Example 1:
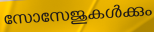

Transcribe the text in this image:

സോസേജുകൾക്കും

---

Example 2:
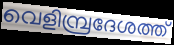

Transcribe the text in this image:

വെളിമ്പ്രദേശത്ത്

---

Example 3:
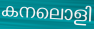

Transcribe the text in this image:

കനലൊളി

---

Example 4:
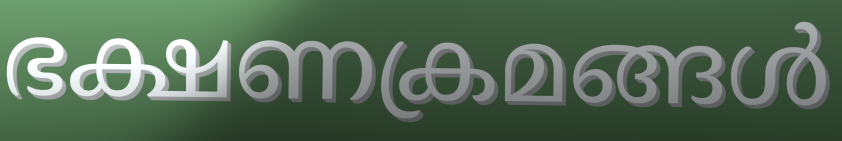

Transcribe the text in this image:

ഭക്ഷണക്രമങ്ങൾ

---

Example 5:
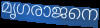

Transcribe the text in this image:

മൃഗരാജനെ